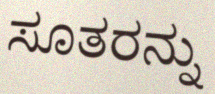
ಸೂತರನ್ನು